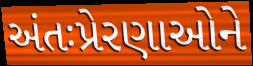
અંતઃપ્રેરણાઓને